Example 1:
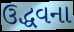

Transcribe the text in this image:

ઉદ્ધવના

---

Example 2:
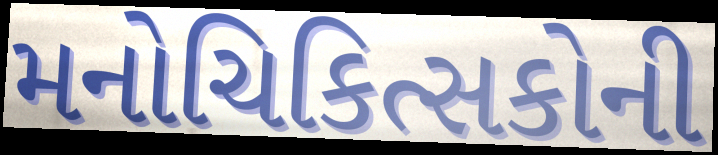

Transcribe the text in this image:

મનોચિકિત્સકોની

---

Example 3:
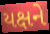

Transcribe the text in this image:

યક્ષને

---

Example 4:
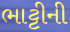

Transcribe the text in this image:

ભાટ્ટીની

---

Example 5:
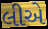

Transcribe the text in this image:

લીએ